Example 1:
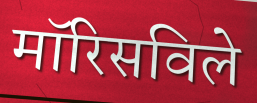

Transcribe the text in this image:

मॉरिसविले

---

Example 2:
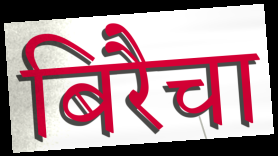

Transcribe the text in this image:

बिरैचा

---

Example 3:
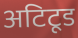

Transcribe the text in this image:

अटिटूड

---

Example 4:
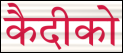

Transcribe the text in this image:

कैदीको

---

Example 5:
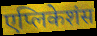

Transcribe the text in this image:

एप्लिकेशंस